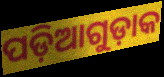
ପଡ଼ିଆଗୁଡ଼ାକ